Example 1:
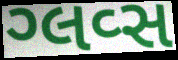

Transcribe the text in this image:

ગ્લવ્સ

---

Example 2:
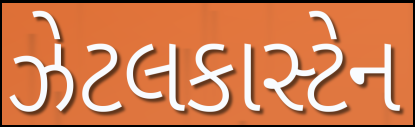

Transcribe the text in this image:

ઝેટલકાસ્ટેન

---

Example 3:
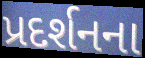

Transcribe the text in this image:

પ્રદર્શનના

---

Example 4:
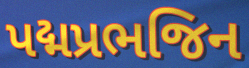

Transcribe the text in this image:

પદ્મપ્રભજિન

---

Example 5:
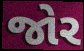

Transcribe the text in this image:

જોર